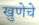
खुणेचे